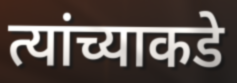
त्यांच्याकडे